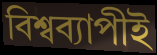
বিশ্বব্যাপীই